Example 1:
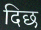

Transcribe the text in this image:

दिछ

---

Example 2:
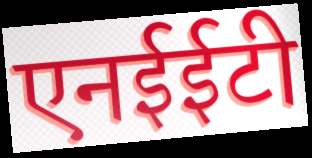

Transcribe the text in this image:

एनईईटी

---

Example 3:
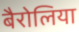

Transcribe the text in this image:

बैरोलिया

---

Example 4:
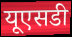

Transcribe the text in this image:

यूएसडी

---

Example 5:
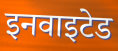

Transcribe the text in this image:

इनवाइटेड